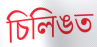
চিলিঙত